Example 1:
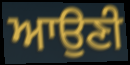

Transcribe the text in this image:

ਆਉਣੀ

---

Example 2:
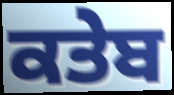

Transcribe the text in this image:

ਕਤੇਬ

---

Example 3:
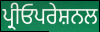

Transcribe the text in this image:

ਪ੍ਰੀਓਪਰੇਸ਼ਨਲ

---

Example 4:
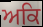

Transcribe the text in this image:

ਅਕਿ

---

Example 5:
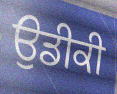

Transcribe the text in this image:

ਉਡੀਕੀ